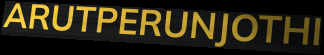
ARUTPERUNJOTHI